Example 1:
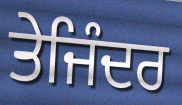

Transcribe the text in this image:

ਤੇਜਿੰਦਰ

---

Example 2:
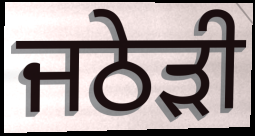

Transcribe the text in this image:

ਜਠੇੜੀ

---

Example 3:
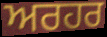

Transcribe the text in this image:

ਅਰਹਰ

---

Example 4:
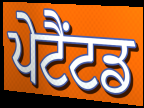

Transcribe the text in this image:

ਪੇਟੈਂਟਡ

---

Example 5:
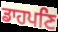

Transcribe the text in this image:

ਡਾਹਪਣਿ